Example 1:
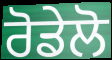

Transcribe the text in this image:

ਰੋਡੇਲੋ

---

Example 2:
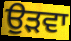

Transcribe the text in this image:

ਉੜਵਾ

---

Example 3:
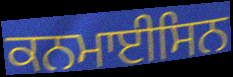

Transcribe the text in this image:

ਕਨਮਾਈਸਿਨ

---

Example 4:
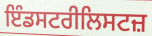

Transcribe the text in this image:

ਇੰਡਸਟਰੀਲਿਸਟਜ਼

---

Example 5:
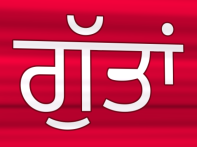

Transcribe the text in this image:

ਗੁੱਤਾਂ